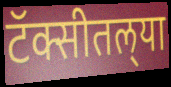
टॅक्सीतल्या